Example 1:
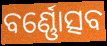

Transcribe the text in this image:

ବର୍ଣ୍ଣୋତ୍ସବ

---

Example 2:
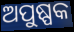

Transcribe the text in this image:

ଅପୁଷ୍ପକ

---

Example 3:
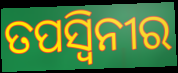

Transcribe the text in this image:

ତପସ୍ୱିନୀର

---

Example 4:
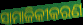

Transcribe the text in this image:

ସାମାଜିକୀକରଣ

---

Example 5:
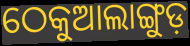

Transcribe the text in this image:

ଠେକୁଆଲାଙ୍ଗୁଡ଼